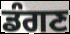
ਡੰਗਣ